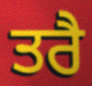
ਤਰੈ